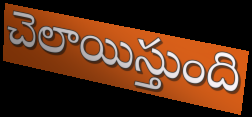
చెలాయిస్తుంది